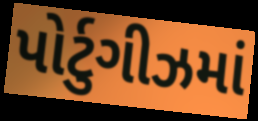
પોર્ટુગીઝમાં